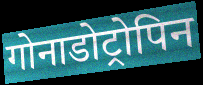
गोनाडोट्रोपिन